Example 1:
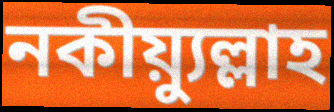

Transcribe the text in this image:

নকীয়্যুল্লাহ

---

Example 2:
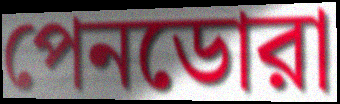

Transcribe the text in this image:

পেনডোরা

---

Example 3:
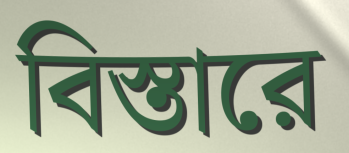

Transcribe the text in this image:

বিস্তারে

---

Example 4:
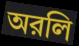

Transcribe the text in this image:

অরলি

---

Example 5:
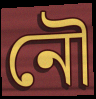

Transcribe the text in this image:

নৌ